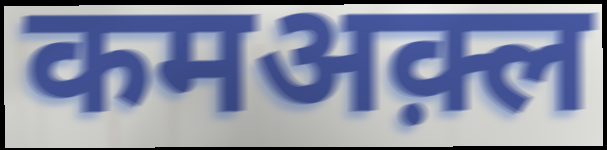
कमअक़्ल